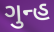
ગુન્હ